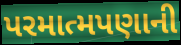
પરમાત્મપણાની